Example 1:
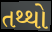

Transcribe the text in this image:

તથ્થો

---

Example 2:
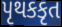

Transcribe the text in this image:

પૃથકકૃત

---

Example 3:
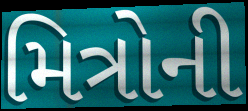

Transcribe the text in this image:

મિત્રોની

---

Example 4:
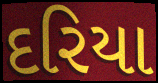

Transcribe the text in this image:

દરિયા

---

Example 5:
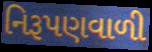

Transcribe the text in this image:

નિરૂપણવાળી